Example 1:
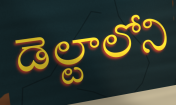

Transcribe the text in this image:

డెల్టాలోని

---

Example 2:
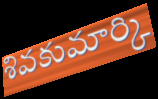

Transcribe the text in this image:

శివకుమార్కి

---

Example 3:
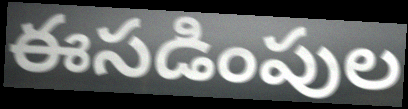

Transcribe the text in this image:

ఈసడింపుల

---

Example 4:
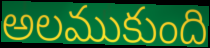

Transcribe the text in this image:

అలముకుంది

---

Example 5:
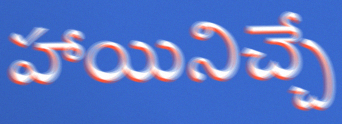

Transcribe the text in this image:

హాయినిచ్చే